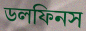
ডলফিনস